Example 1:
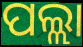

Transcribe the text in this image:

ପଲ୍ଲା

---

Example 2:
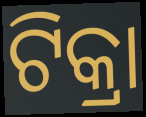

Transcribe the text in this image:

ଟିକ୍ରା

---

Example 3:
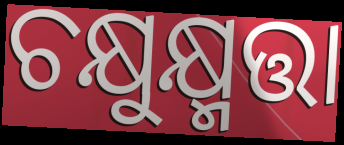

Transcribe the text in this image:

ଚକ୍ଷୁକ୍ଷ୍ମତ୍ତା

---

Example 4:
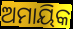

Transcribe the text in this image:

ଅମାୟିକ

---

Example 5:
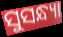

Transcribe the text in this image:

ସୁସନ୍ଧ୍ୟା